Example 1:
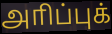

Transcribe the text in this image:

அரிப்புக்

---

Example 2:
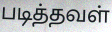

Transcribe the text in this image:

படித்தவள்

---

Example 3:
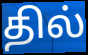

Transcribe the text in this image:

தில்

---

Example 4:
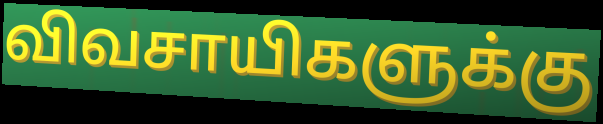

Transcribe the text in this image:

விவசாயிகளுக்கு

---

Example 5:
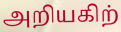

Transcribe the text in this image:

அறியகிற்